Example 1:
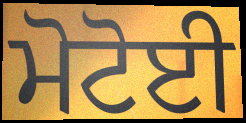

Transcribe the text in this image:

ਮੋਟੋਈ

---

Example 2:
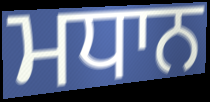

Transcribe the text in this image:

ਮਧਾਨ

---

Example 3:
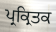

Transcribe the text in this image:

ਪ੍ਰਕ੍ਰਿਤਕ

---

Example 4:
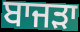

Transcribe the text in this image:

ਬਾਜਡ਼ਾ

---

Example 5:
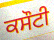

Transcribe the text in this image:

ਕਸੌਟੀ